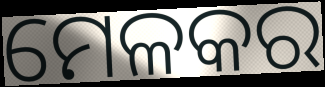
ମେଳକର